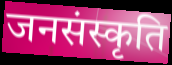
जनसंस्कृति